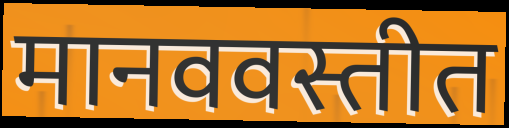
मानववस्तीत